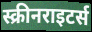
स्क्रीनराइटर्स